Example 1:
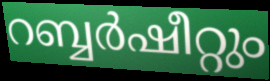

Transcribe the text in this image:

റബ്ബർഷീറ്റും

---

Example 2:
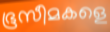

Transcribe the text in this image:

ഭൂസീമകളെ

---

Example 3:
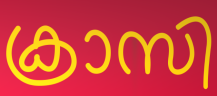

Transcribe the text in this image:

ക്രാസി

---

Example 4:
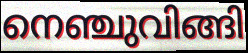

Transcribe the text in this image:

നെഞ്ചുവിങ്ങി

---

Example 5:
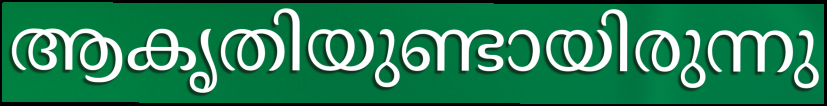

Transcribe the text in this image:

ആകൃതിയുണ്ടായിരുന്നു